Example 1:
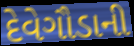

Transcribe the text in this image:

દેવેગૌડાની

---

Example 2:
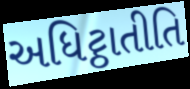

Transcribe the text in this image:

અધિટ્ઠાતીતિ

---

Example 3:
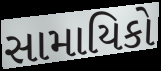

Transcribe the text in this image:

સામાયિકો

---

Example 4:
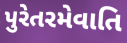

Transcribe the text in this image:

પુરેતરમેવાતિ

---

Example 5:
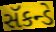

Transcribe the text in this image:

સૅકન્ડે